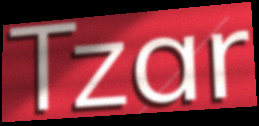
Tzar